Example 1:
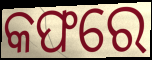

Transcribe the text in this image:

କଫରେ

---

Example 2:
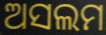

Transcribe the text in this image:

ଅସଲମ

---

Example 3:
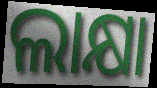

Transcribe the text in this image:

ଲାକ୍ଷା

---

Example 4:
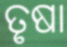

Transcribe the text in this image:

ତୃଷା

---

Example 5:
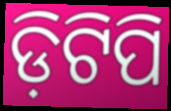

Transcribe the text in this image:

ଡ଼ିଟିପି